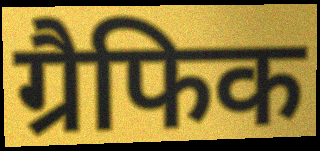
ग्रैफिक